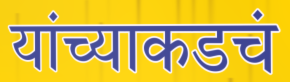
यांच्याकडचं